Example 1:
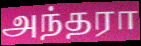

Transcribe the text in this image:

அந்தரா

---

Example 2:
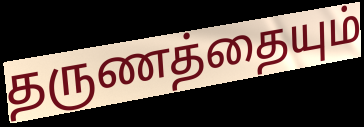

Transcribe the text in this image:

தருணத்தையும்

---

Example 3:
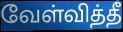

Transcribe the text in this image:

வேள்வித்தீ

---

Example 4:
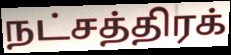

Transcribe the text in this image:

நட்சத்திரக்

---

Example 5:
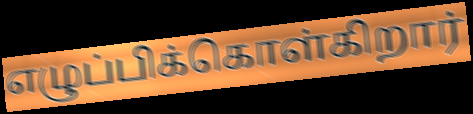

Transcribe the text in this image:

எழுப்பிக்கொள்கிறார்